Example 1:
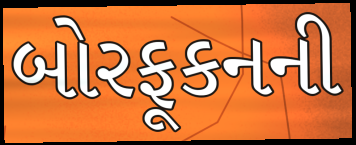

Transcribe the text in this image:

બોરફૂકનની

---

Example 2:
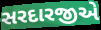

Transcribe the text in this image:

સરદારજીએ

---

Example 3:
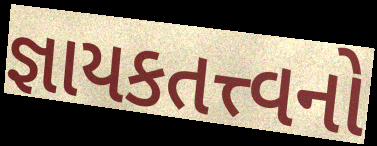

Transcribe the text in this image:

જ્ઞાયકતત્ત્વનો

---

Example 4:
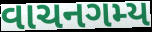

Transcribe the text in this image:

વાચનગમ્ય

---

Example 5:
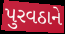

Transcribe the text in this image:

પુરવઠાને